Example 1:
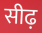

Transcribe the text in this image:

सीढ़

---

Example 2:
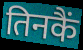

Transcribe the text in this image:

तिनकैं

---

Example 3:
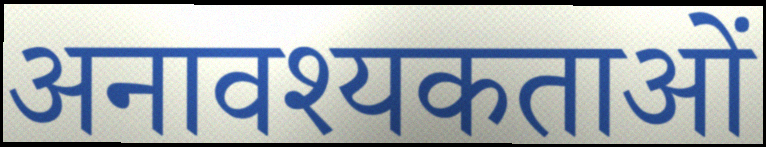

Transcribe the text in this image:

अनावश्यकताओं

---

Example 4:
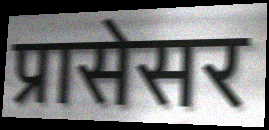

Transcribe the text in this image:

प्रासेसर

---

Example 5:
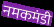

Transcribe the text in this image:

नमकमंडी